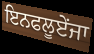
ਇਨਫਲੂਏਂਜਾ